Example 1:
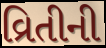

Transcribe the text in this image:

વ્રિતીની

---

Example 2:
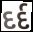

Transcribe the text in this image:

દર્દ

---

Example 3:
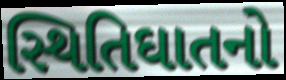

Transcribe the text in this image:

સ્થિતિઘાતનો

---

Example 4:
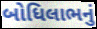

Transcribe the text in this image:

બોધિલાભનું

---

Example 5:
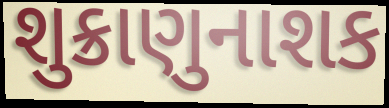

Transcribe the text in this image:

શુક્રાણુનાશક